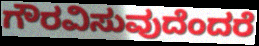
ಗೌರವಿಸುವುದೆಂದರೆ